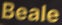
Beale